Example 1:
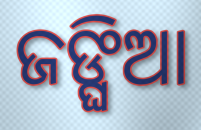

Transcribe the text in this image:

ଜଙ୍ଘିଆ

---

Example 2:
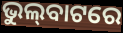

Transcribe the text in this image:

ଭୁଲ୍‌ବାଟରେ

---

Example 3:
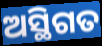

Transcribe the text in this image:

ଅସ୍ଥିଗତ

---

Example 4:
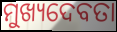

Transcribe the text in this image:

ମୁଖ୍ୟଦେବତା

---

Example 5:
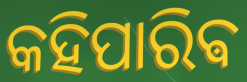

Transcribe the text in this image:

କହିପାରିଵ